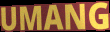
UMANG